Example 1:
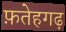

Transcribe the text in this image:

फ़तेहगढ़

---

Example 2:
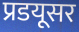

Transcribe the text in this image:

प्रडयूसर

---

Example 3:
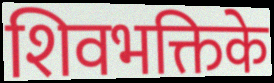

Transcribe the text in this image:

शिवभक्तिके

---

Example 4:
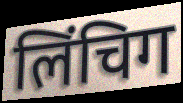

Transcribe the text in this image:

लिंचिग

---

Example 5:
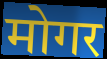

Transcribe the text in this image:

मोगर